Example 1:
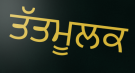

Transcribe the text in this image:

ਤੱਤਮੂਲਕ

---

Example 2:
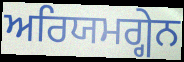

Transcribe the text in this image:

ਅਰਿਯਮਗ੍ਗੇਨ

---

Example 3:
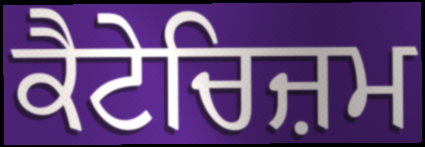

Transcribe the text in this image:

ਕੈਟੇਚਿਜ਼ਮ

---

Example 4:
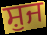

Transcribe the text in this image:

ਸ਼ੁਜ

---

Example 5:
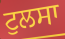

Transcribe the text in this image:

ਟੁਲਸਾ